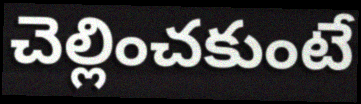
చెల్లించకుంటే